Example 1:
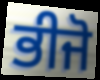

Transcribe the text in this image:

ਭੀਜੋ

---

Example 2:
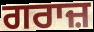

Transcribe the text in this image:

ਗਰਾਜ਼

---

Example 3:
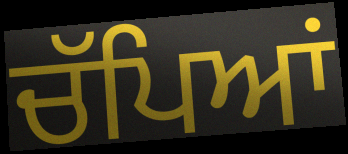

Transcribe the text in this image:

ਚੱਪਿਆਂ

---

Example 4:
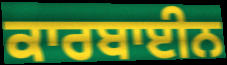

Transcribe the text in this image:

ਕਾਰਬਾਈਨ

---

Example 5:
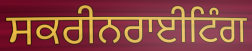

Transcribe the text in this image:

ਸਕਰੀਨਰਾਈਟਿੰਗ